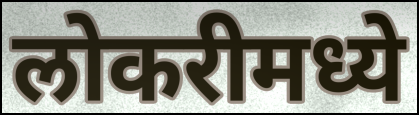
लोकरीमध्ये